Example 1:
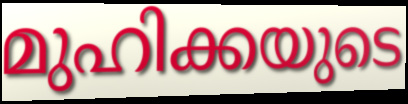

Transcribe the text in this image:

മുഹിക്കയുടെ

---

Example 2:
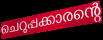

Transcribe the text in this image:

ചെറുപ്പക്കാരന്റെ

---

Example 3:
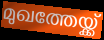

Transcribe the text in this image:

മുഖത്തേയ്ക്ക്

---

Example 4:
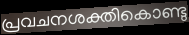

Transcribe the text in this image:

പ്രവചനശക്തികൊണ്ടു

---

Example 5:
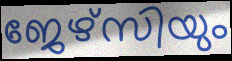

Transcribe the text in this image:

ജേഴ്സിയും